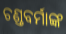
ଚଣ୍ଡବର୍ମାଙ୍କ